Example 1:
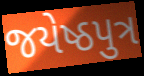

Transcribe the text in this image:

જયેષ્ઠપુત્ર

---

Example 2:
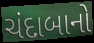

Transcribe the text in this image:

ચંદાબાનો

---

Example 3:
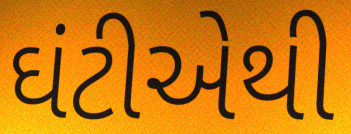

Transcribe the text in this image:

ઘંટીએથી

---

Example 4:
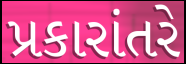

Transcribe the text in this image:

પ્રકારાંતરે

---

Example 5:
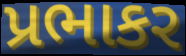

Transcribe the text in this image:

પ્રભાકર